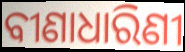
ବୀଣାଧାରିଣୀ